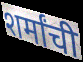
शर्मांची